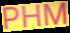
PHM